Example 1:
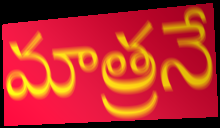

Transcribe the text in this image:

మాత్రనే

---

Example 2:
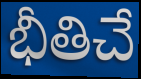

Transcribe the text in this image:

భీతిచే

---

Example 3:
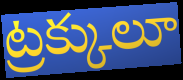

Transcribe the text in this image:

ట్రక్కులూ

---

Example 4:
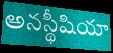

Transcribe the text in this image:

అనస్థీషియా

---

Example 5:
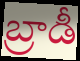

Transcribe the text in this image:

బ్రాడీ